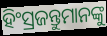
ହିଂସ୍ରଜନ୍ତୁମାନଙ୍କୁ